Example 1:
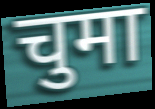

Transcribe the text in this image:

चुमा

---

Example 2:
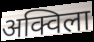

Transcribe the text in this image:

अक्विला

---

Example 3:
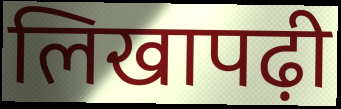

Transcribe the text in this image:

लिखापढ़ी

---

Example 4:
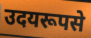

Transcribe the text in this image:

उदयरूपसे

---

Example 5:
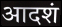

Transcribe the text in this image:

आदशं